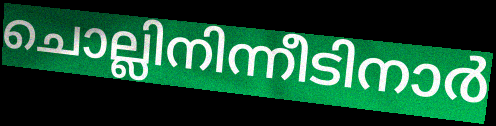
ചൊല്ലിനിന്നീടിനാർ